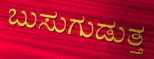
ಬುಸುಗುಡುತ್ತ